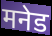
मनेड